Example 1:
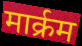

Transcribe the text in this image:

मार्क्रम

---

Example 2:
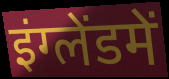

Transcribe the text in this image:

इंग्लेंडमें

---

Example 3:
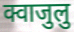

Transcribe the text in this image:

क्वाजुलु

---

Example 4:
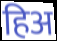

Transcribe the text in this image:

हिअ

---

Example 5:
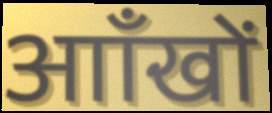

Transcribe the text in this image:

आाँखों